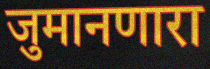
जुमानणारा